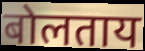
बोलताय